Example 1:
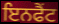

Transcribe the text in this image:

ਇਨਫੈਂਟ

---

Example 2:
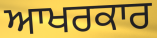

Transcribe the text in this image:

ਆਖਰਕਾਰ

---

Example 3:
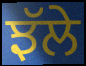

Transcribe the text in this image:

ਝੱਲੇ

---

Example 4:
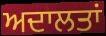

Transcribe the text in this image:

ਅਦਾਲਤਾਂ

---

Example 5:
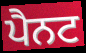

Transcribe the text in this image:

ਪੈਨਟ